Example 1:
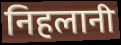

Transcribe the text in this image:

निहलानी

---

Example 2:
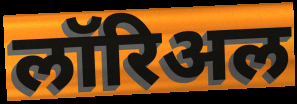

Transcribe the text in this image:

लॉरिअल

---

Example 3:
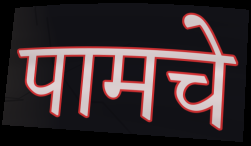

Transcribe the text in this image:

पामचे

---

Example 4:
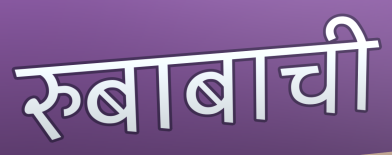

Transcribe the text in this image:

रुबाबाची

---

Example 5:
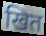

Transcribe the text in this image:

खित